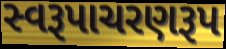
સ્વરૂપાચરણરૂપ